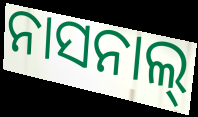
ନାସନାଲ୍